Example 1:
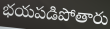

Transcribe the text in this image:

భయపడిపోతారు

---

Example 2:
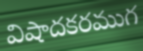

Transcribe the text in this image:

విషాదకరముగ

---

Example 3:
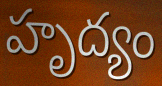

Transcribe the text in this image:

హృద్యం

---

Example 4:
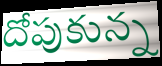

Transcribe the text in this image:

దోపుకున్న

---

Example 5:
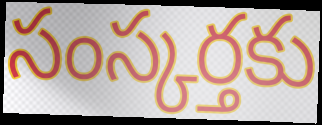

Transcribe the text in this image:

సంస్కర్తకు